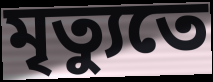
মৃত্যুতে